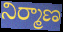
నిర్మాణ